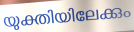
യുക്തിയിലേക്കും